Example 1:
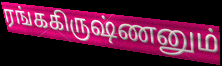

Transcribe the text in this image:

ரங்ககிருஷ்ணனும்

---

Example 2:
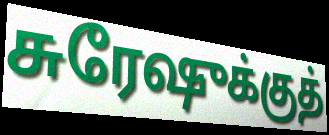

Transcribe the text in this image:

சுரேஷுக்குத்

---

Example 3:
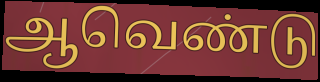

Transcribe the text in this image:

ஆவெண்டு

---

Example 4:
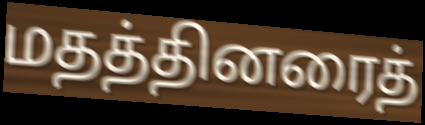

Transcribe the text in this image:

மதத்தினரைத்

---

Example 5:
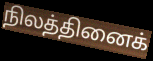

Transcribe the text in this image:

நிலத்தினைக்